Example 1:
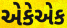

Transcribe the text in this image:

એકેએક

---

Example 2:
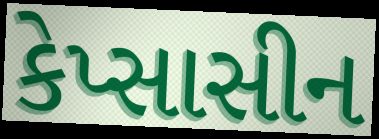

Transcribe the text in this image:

કેપ્સાસીન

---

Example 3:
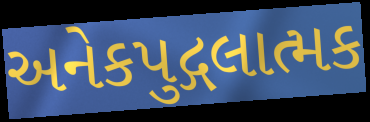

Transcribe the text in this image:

અનેકપુદ્ગલાત્મક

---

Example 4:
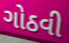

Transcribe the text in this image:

ગોઠવી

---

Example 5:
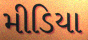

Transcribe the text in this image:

મીડિયા